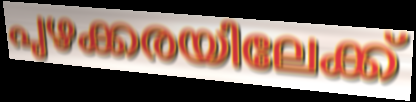
പുഴക്കരയിലേക്ക്